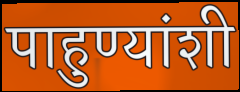
पाहुण्यांशी